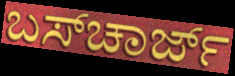
ಬಸ್‌ಚಾರ್ಜ್